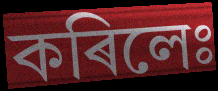
কৰিলেঃ